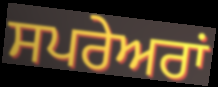
ਸਪਰੇਅਰਾਂ